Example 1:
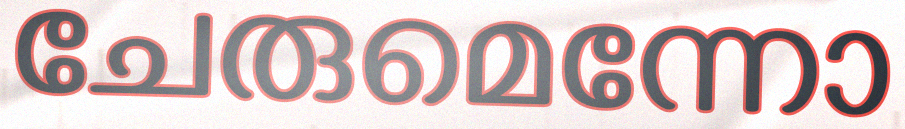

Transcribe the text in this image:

ചേരുമെന്നോ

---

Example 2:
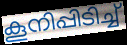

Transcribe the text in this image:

കൂനിപ്പിടിച്ച്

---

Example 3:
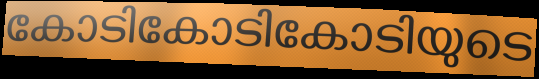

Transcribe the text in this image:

കോടികോടികോടിയുടെ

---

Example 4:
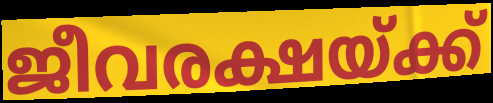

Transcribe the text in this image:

ജീവരക്ഷയ്ക്ക്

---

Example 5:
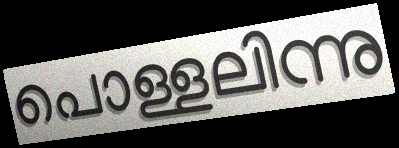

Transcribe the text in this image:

പൊള്ളലിന്നു